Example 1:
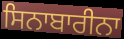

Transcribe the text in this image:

ਸਿਨਾਬਾਰੀਨਾ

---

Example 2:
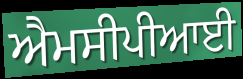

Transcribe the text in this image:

ਐਮਸੀਪੀਆਈ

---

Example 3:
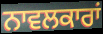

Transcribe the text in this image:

ਨਾਵਲਕਾਰਾਂ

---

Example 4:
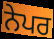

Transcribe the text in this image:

ਨੇਪਰ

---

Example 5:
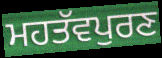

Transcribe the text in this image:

ਮਹਤੱਵਪੁਰਣ